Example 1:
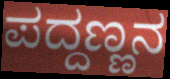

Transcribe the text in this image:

ಪದ್ದಣ್ಣನ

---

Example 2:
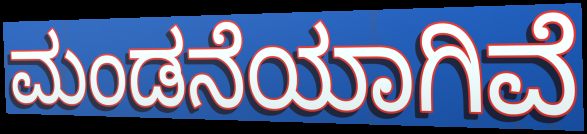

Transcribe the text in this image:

ಮಂಡನೆಯಾಗಿವೆ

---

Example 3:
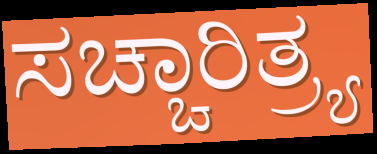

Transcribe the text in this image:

ಸಚ್ಚಾರಿತ್ರ್ಯ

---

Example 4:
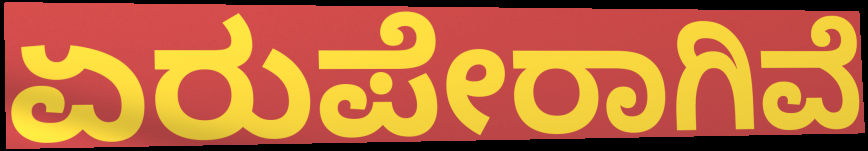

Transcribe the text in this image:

ಏರುಪೇರಾಗಿವೆ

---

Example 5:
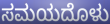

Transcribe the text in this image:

ಸಮಯದೊಳು